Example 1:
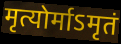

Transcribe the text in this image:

मृत्योर्माऽमृतं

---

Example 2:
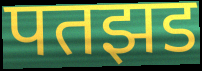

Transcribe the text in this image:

पतझड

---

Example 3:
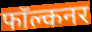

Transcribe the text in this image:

फॉल्कनर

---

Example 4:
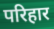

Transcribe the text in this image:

परिहार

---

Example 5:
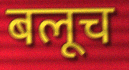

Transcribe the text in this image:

बलूच